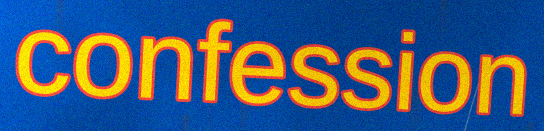
confession